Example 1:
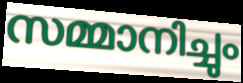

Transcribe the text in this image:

സമ്മാനിച്ചും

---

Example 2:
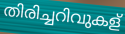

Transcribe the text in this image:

തിരിച്ചറിവുകള്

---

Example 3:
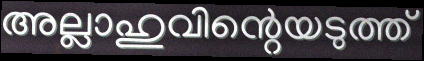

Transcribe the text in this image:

അല്ലാഹുവിന്റെയടുത്ത്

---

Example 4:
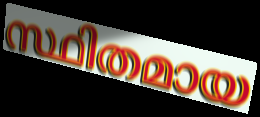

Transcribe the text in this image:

സ്ഥിതമായ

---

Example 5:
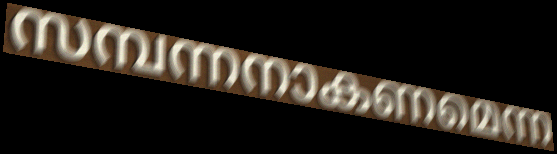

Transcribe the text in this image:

സമ്പന്നനാകണമെന്ന